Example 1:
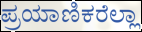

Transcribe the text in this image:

ಪ್ರಯಾಣಿಕರೆಲ್ಲಾ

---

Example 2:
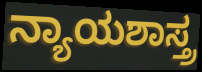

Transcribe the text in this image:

ನ್ಯಾಯಶಾಸ್ತ್ರ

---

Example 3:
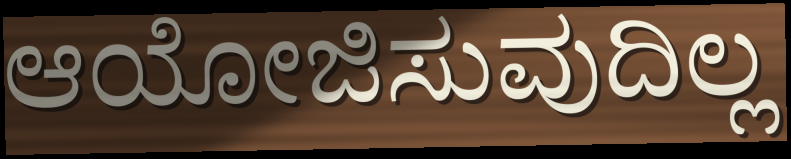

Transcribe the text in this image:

ಆಯೋಜಿಸುವುದಿಲ್ಲ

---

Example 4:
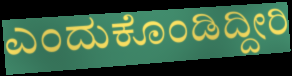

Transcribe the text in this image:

ಎಂದುಕೊಂಡಿದ್ದೀರಿ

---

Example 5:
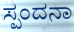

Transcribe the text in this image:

ಸ್ಪಂದನಾ